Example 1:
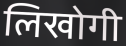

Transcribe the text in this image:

लिखोगी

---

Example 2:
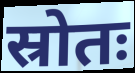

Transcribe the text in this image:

स्रोतः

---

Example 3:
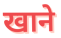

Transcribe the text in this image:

खाने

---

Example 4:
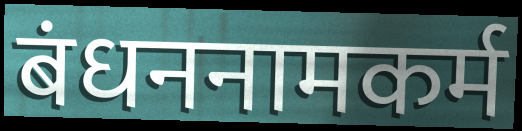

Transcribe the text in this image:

बंधननामकर्म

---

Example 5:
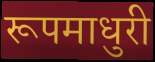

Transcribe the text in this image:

रूपमाधुरी